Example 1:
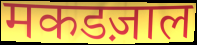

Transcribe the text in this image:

मकडज़ाल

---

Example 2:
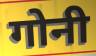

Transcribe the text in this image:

गोनी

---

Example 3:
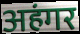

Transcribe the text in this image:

अहंगर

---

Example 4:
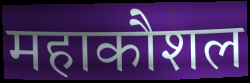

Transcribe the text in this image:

महाकौशल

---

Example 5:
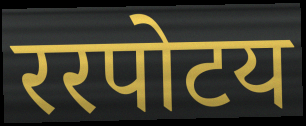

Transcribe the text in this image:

ररपोटय